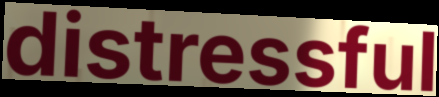
distressful